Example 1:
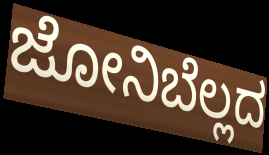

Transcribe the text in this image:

ಜೋನಿಬೆಲ್ಲದ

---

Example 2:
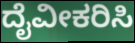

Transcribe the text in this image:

ದೈವೀಕರಿಸಿ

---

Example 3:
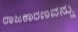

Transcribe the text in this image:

ರಾಜಕಾರಣವನ್ನು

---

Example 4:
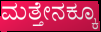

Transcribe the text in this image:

ಮತ್ತೇನಕ್ಕೂ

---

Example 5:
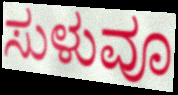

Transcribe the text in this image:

ಸುಳುವೂ